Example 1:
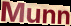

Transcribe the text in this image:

Munn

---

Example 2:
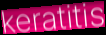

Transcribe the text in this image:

keratitis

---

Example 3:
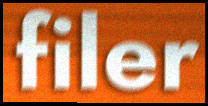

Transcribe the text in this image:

filer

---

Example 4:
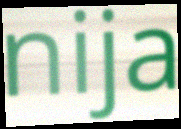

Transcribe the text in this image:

nija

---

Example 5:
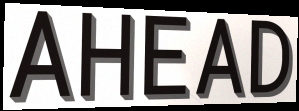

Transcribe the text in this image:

AHEAD